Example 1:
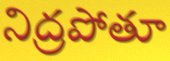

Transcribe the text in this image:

నిద్రపోతూ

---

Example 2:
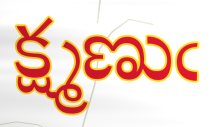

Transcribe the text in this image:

క్ష్మణుఁ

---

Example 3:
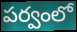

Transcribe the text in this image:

పర్వంలో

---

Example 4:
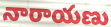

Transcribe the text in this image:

నారాయణు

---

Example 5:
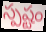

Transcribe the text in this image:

స్పష్టం